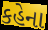
કહેના